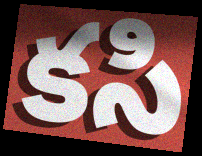
కసి